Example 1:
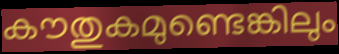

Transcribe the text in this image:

കൗതുകമുണ്ടെങ്കിലും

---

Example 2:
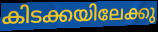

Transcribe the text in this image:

കിടക്കയിലേക്കു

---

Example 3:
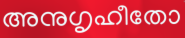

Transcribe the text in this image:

അനുഗൃഹീതോ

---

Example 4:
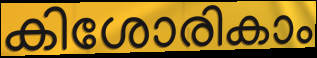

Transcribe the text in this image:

കിശോരികാം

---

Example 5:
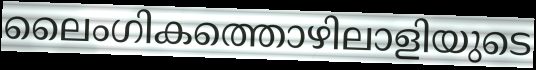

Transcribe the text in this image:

ലൈംഗികത്തൊഴിലാളിയുടെ